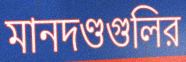
মানদণ্ডগুলির